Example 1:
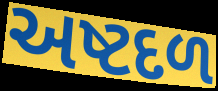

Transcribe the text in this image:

અષ્ટદળ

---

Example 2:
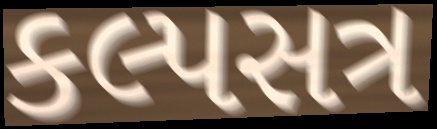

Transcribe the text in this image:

કલ્પસત્ર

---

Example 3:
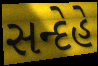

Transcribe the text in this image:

સન્દેહે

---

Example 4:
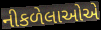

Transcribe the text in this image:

નીકળેલાઓએ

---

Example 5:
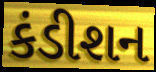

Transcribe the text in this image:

કંડીશન